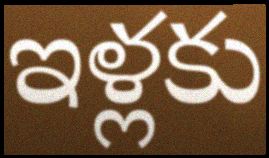
ఇళ్లకు